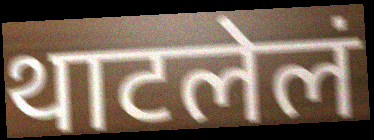
थाटलेलं